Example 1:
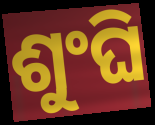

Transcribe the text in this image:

ଶୁଂଘି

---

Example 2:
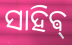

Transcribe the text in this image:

ସାହିଵ୍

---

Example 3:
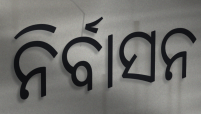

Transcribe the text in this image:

ନିର୍ବାସନ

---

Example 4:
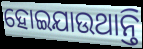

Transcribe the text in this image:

ହୋଇଯାଉଥାନ୍ତି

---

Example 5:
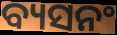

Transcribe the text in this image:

ବ୍ୟସନଂ